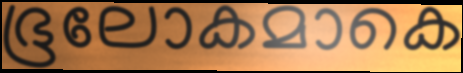
ഭൂലോകമാകെ